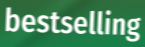
bestselling